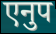
एनुप